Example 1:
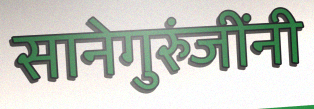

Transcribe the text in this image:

सानेगुरुंजींनी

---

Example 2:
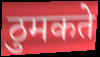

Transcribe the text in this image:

ठुमकते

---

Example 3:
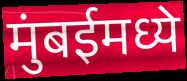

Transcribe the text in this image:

मुंबईमध्ये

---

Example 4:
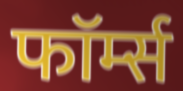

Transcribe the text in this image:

फॉर्म्स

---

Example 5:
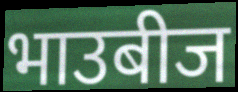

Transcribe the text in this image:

भाउबीज